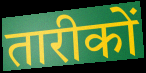
तारीकों